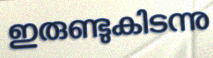
ഇരുണ്ടുകിടന്നു